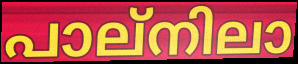
പാല്നിലാ